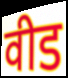
वीड